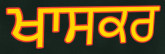
ਖਾਸਕਰ